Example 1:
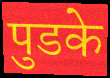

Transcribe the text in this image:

पुडके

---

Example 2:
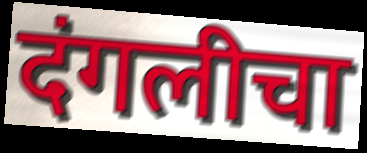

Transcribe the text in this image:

दंगलीचा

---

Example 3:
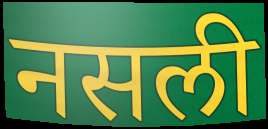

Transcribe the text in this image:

नसली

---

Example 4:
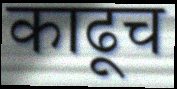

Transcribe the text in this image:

काढूच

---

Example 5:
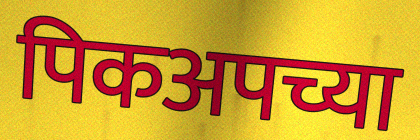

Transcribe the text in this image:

पिकअपच्या